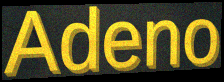
Adeno